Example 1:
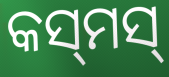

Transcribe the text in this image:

କସ୍‌ମସ୍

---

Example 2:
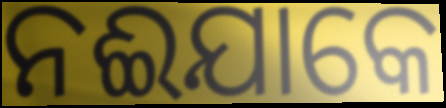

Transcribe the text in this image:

ନଈଯାକେ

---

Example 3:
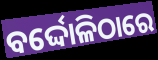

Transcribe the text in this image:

ବର୍ଦ୍ଦୋଳିଠାରେ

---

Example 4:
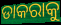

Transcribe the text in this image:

ଡାକରାକୁ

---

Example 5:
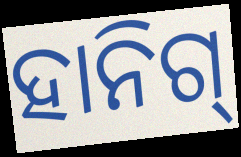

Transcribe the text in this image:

ହାନିଗ୍